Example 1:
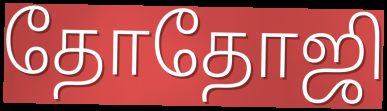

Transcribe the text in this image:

தோதோஜி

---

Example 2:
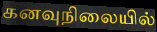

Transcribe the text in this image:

கனவுநிலையில்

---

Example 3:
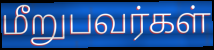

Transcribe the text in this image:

மீறுபவர்கள்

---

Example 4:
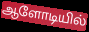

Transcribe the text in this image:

ஆளோடியில்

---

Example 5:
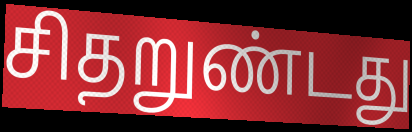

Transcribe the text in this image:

சிதறுண்டது